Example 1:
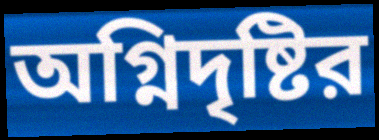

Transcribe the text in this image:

অগ্নিদৃষ্টির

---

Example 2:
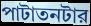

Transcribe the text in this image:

পাটাতনটার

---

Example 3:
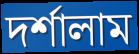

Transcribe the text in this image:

দর্শালাম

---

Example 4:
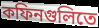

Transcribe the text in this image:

কফিনগুলিতে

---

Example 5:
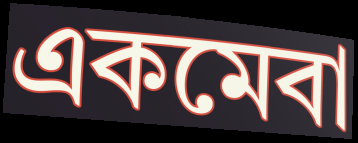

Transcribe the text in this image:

একমেবা